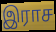
இராச